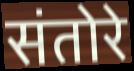
संतोरे